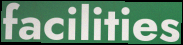
facilities